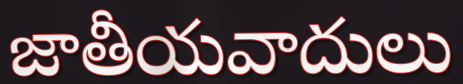
జాతీయవాదులు